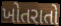
ખોતરાતો